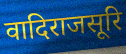
वादिराजसूरि